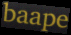
baape